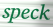
speck